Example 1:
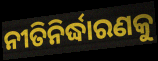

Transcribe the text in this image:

ନୀତିନିର୍ଦ୍ଧାରଣକୁ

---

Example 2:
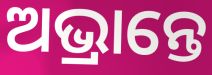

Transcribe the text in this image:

ଅଭ୍ରାନ୍ତେ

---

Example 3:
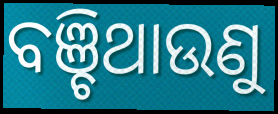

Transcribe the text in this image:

ବଞ୍ଚିଥାଉଣୁ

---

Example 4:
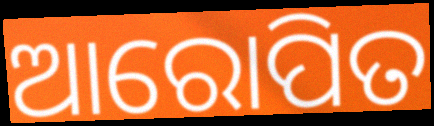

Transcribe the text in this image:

ଆରୋପିତ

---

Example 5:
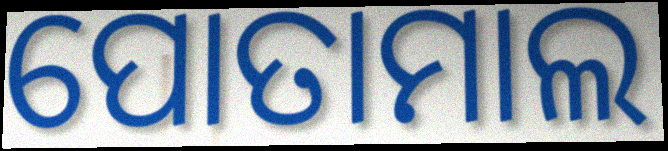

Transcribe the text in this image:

ପୋତାମାଲ